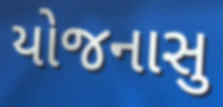
યોજનાસુ